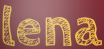
lena